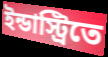
ইন্ডাস্ট্রিতে